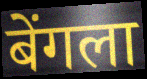
बेंगला